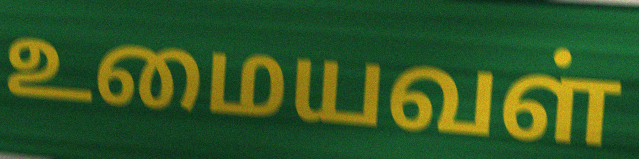
உமையவள்